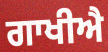
ਗਾਖੀਐ